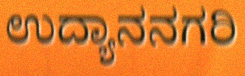
ಉದ್ಯಾನನಗರಿ